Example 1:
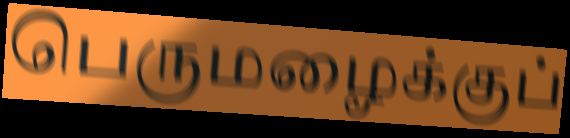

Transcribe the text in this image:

பெருமழைக்குப்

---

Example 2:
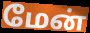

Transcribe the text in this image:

மேன்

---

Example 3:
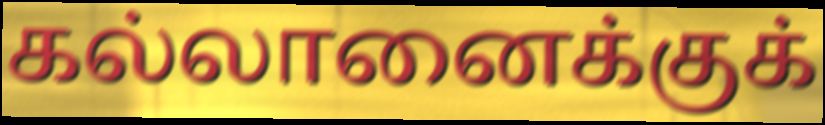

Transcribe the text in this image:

கல்லானைக்குக்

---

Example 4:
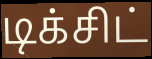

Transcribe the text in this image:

டிக்சிட்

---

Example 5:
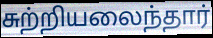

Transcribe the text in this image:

சுற்றியலைந்தார்